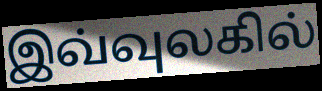
இவ்வுலகில்